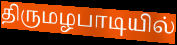
திருமழபாடியில்